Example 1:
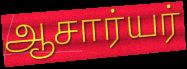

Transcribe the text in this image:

ஆசார்யர்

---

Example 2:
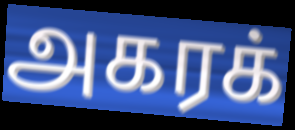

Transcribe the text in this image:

அகரக்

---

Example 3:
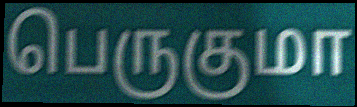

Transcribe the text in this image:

பெருகுமா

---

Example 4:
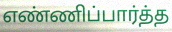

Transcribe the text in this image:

எண்ணிப்பார்த்த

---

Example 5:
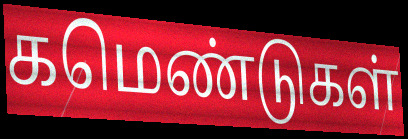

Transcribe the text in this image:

கமெண்டுகள்